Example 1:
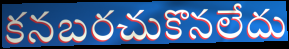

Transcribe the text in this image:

కనబరచుకొనలేదు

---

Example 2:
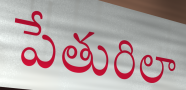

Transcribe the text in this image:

పేతురిలా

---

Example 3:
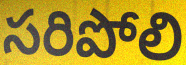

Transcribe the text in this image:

సరిపోలి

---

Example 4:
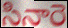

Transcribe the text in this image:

సినారె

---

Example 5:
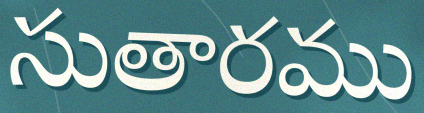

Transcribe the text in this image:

సుతారము